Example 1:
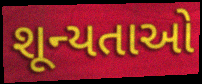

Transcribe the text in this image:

શૂન્યતાઓ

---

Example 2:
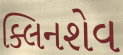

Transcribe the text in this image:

ક્લિનશેવ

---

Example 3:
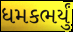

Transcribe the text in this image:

ધમકભર્યું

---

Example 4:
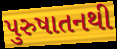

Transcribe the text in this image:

પુરુષાતનથી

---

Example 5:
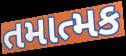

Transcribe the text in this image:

તમાત્મક